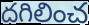
దగిలించ